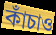
কাঁচাও